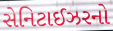
સેનિટાઈઝરનો